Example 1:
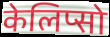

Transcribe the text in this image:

केलिप्सो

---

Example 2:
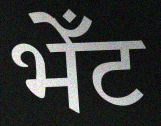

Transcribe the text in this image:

भेँट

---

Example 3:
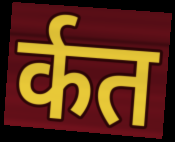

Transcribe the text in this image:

र्कत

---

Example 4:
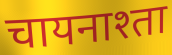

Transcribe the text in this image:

चायनाश्ता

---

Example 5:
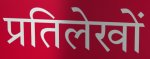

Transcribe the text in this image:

प्रतिलेखों